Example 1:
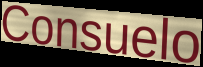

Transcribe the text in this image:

Consuelo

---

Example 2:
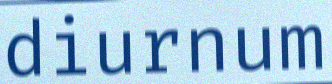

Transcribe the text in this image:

diurnum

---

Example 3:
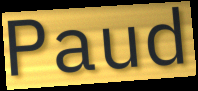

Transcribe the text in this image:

Paud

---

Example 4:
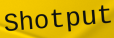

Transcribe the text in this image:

Shotput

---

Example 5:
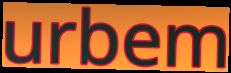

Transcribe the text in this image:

urbem